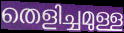
തെളിച്ചമുള്ള